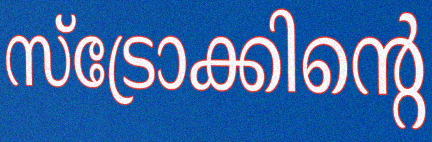
സ്ട്രോക്കിന്റെ